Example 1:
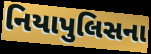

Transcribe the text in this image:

નિયાપુલિસના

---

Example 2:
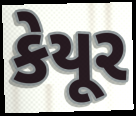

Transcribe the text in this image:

કેયૂર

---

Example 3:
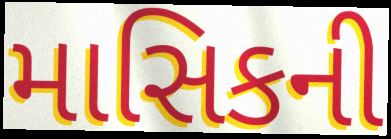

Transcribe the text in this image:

માસિકની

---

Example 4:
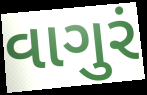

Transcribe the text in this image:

વાગુરં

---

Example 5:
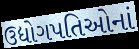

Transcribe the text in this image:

ઉદ્યોગપતિઓનાં